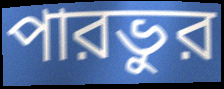
পারভুর